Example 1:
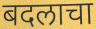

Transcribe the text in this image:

बदलाचा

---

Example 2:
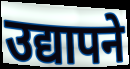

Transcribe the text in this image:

उद्यापने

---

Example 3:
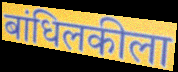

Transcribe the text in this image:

बांधिलकीला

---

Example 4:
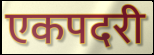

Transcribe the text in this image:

एकपदरी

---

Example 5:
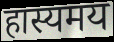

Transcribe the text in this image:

हास्यमय